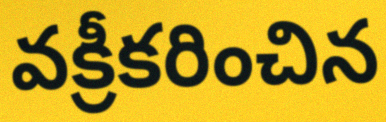
వక్రీకరించిన